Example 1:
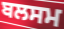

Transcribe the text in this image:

ਬਲਸਮ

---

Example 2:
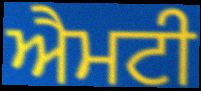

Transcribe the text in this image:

ਐਮਟੀ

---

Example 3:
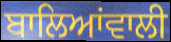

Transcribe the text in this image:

ਬਾਲਿਆਂਵਾਲੀ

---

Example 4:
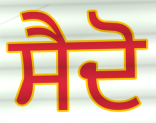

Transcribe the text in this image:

ਸੈਦੋ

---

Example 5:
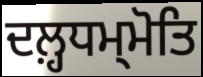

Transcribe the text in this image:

ਦਲ਼੍ਹਧਮ੍ਮੋਤਿ